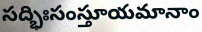
సద్భిఃసంస్తూయమానాం